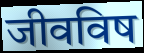
जीवविष